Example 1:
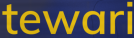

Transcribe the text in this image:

tewari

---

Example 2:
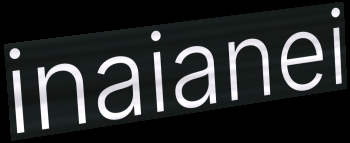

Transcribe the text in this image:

inaianei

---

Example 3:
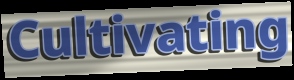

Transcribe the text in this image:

Cultivating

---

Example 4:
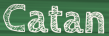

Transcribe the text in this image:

Catan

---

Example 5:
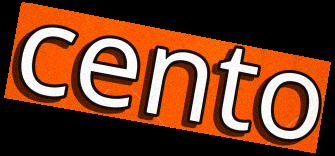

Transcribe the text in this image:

cento